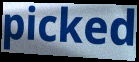
picked